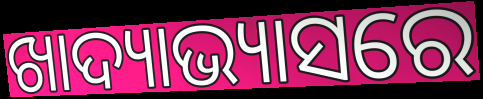
ଖାଦ୍ୟାଭ୍ୟାସରେ